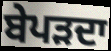
ਬੇਪੜਦਾ